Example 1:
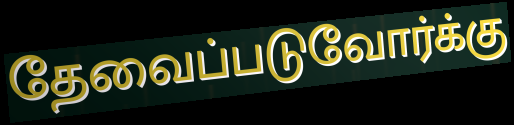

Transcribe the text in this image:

தேவைப்படுவோர்க்கு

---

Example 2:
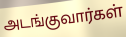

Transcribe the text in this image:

அடங்குவார்கள்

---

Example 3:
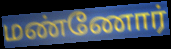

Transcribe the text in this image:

மண்ணோர்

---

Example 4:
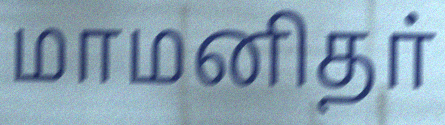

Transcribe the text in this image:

மாமனிதர்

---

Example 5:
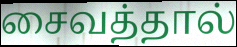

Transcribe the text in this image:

சைவத்தால்